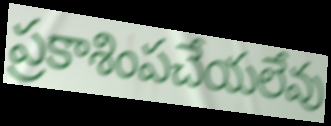
ప్రకాశింపచేయలేవు